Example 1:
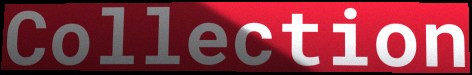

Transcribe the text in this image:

Collection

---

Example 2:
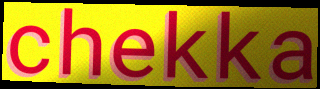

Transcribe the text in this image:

chekka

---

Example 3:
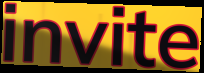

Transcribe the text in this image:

invite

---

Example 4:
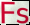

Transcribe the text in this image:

Fs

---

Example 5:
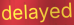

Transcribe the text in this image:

delayed